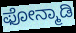
ಫೋನ್ಮಾಡಿ